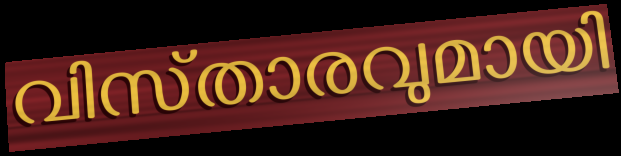
വിസ്‌താരവുമായി